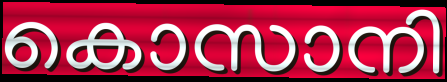
കൊസാനി